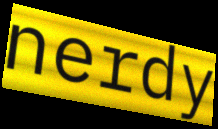
nerdy